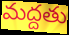
మద్దతు